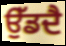
ਉੱਡਦੈ